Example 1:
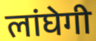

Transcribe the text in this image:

लांघेगी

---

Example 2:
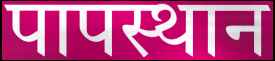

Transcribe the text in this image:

पापस्थान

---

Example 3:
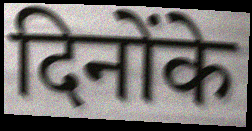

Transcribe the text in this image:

दिनोंके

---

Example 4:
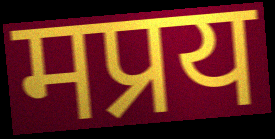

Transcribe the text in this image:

मप्रय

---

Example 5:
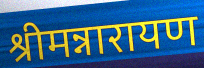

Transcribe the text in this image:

श्रीमन्नारायण